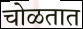
चोळतात